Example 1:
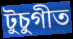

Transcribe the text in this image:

টুচুগীত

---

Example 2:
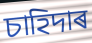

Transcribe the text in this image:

চাহিদাৰ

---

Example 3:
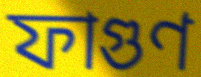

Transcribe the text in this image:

ফাগুণ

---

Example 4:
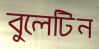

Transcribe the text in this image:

বুলেটিন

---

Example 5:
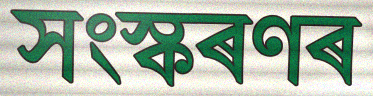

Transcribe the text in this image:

সংস্কৰণৰ